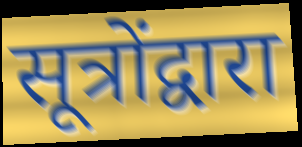
सूत्रोंद्वारा